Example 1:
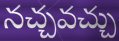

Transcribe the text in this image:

నచ్చవచ్చు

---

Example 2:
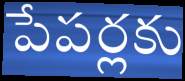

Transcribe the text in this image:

పేపర్లకు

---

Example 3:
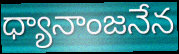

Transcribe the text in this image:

ధ్యానాంజనేన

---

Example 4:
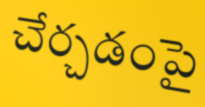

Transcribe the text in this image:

చేర్చడంపై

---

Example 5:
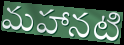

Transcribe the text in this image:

మహానటి